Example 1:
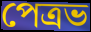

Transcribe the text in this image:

পেত্রভ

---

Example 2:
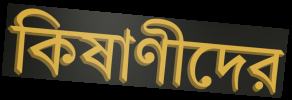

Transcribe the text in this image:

কিষাণীদের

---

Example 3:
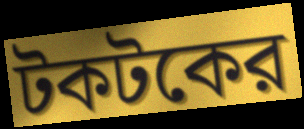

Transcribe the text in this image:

টকটকের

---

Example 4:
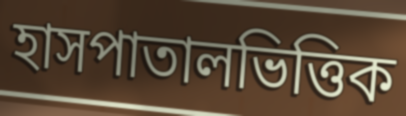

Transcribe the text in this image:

হাসপাতালভিত্তিক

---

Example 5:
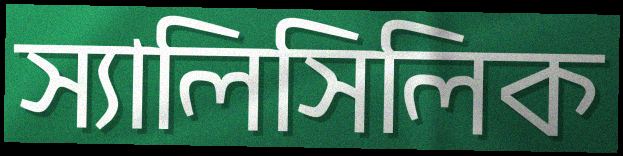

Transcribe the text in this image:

স্যালিসিলিক